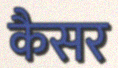
कैसर